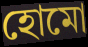
হোমো